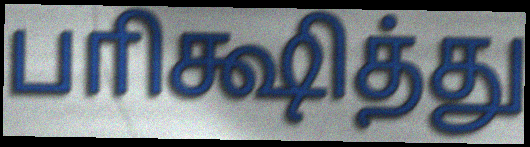
பரிக்ஷித்து